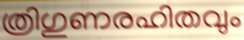
ത്രിഗുണരഹിതവും